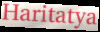
Haritatya